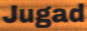
Jugad